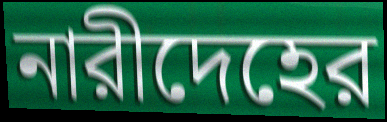
নারীদেহের